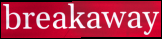
breakaway